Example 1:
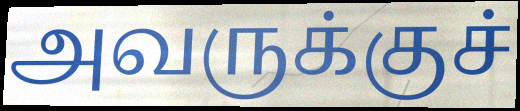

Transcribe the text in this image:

அவருக்குச்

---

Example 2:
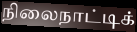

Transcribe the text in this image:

நிலைநாட்டிக்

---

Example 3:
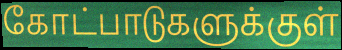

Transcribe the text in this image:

கோட்பாடுகளுக்குள்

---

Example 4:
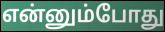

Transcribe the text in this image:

என்னும்போது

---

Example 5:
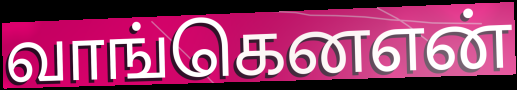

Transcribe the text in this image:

வாங்கெனஎன்